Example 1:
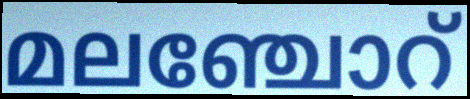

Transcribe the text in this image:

മലഞ്ചോറ്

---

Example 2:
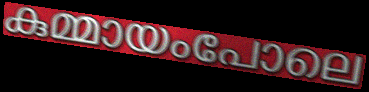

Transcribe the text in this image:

കുമ്മായംപോലെ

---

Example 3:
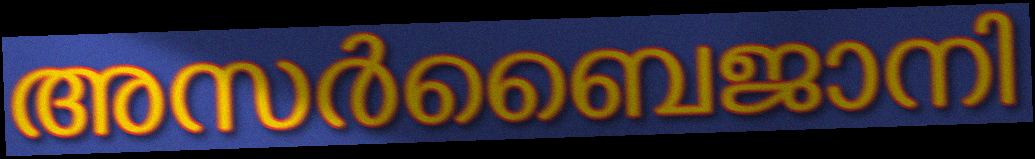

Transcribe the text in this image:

അസർബൈജാനി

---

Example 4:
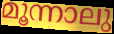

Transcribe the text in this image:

മൂന്നാലു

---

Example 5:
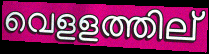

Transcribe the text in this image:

വെളളത്തില്